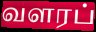
வளரப்